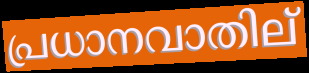
പ്രധാനവാതില്